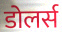
डोलर्स